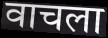
वाचला